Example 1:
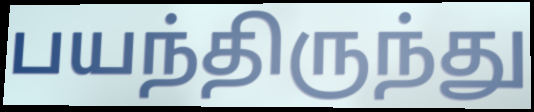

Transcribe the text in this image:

பயந்திருந்து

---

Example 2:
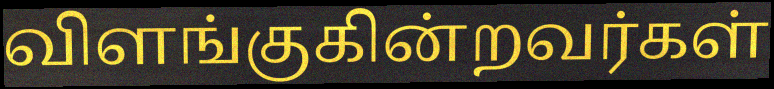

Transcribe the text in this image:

விளங்குகின்றவர்கள்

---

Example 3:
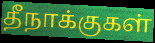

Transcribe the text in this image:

தீநாக்குகள்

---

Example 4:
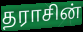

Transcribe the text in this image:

தராசின்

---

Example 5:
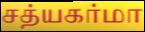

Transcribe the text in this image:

சத்யகர்மா